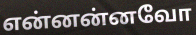
என்னன்னவோ